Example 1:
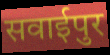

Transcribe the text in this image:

सवाईपुर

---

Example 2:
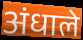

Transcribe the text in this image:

अंधाले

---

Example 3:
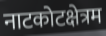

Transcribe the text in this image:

नाटकोटक्षेत्रम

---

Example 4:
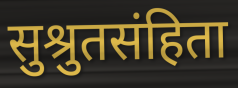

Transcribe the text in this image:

सुश्रुतसंहिता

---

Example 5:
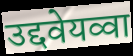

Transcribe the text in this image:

उद्दवेयव्वा